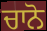
ਚਾਨੋ